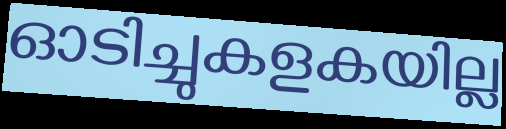
ഓടിച്ചുകളകയില്ല